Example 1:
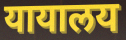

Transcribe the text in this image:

यायालय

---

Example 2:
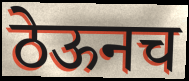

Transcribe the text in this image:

ठेऊनच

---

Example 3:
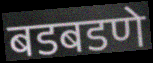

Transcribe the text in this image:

बडबडणे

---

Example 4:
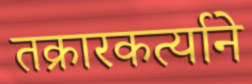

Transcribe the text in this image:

तक्रारकर्त्याने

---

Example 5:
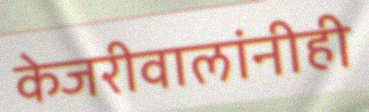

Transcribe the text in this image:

केजरीवालांनीही